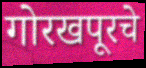
गोरखपूरचे